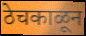
ठेचकाळून